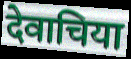
देवाचिया